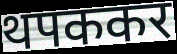
थपककर